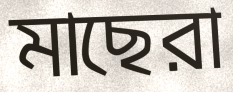
মাছেরা